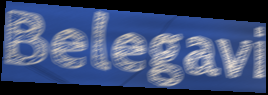
Belegavi